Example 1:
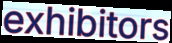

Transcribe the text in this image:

exhibitors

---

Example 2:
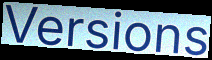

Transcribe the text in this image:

Versions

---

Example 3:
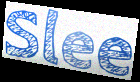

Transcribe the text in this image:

Slee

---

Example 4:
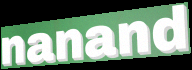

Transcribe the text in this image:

nanand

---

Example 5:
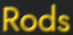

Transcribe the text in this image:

Rods